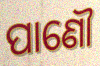
ପାଣୌ